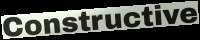
Constructive